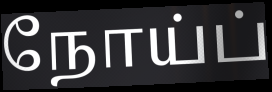
நோய்ப்